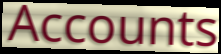
Accounts